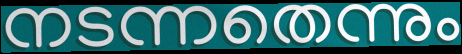
നടന്നതെന്നും